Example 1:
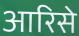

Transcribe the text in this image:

आरिसे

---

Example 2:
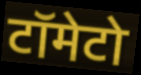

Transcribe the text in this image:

टॉमेटो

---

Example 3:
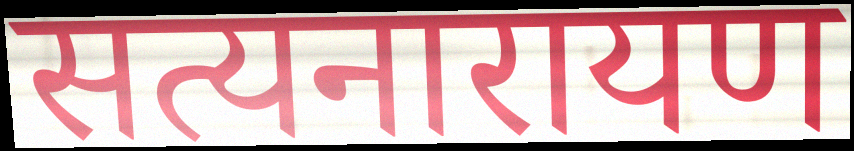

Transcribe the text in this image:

सत्यनारायण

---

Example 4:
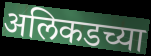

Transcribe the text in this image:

अलिकडच्या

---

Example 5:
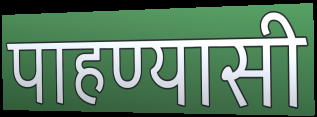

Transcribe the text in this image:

पाहण्यासी